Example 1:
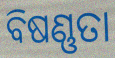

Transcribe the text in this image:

ବିଷଣ୍ଣତା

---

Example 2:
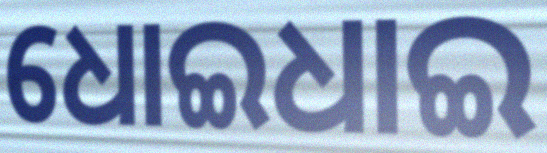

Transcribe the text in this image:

ଧୋଇଧାଇ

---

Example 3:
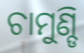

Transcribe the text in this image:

ଚାମୁଣ୍ଡି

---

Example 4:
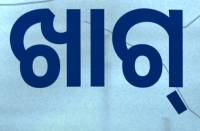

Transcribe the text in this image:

ଖାଗ୍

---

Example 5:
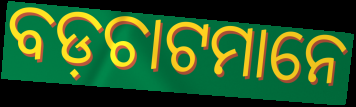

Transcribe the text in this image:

ବଡ଼ଚାଟମାନେ